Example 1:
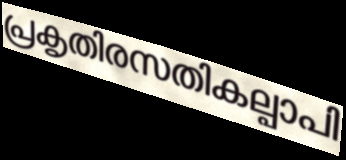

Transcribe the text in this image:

പ്രകൃതിരസതികല്പാപി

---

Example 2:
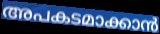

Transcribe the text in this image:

അപകടമാക്കാൻ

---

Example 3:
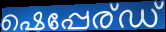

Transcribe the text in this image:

ഷെപ്പേര്ഡ്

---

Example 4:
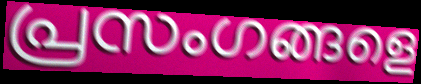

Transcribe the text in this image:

പ്രസംഗങ്ങളെ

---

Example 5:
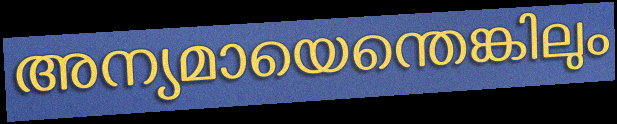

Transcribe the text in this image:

അന്യമായെന്തെങ്കിലും